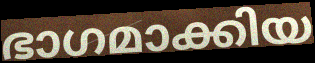
ഭാഗമാക്കിയ